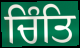
ਚਿੰਤਿ